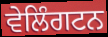
ਵੇਲਿੰਗਟਨ